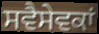
ਸਵੈਸੇਵਕਾਂ